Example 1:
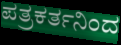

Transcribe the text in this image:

ಪತ್ರಕರ್ತನಿಂದ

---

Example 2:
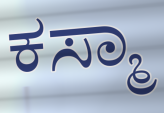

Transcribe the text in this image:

ಕಸ್ಮಾ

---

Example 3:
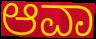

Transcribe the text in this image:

ಆವಾ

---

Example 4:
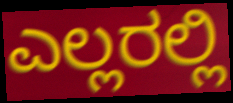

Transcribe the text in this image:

ಎಲ್ಲರಲ್ಲಿ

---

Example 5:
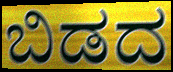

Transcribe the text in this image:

ಬಿಡದ